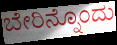
ಬೇರಿನ್ನೊಂದು